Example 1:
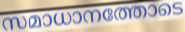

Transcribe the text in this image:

സമാധാനത്തോടെ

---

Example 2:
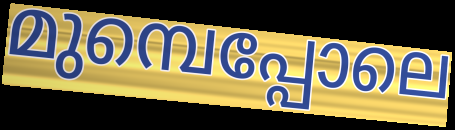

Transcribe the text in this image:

മുമ്പെപ്പോലെ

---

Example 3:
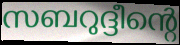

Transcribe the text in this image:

സബറുദ്ദീന്റെ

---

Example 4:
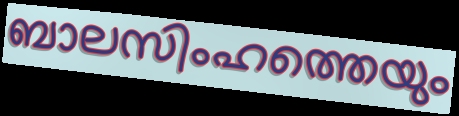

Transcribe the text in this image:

ബാലസിംഹത്തെയും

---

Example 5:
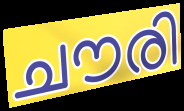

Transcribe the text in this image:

ചൗരി